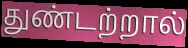
துண்டற்றால்